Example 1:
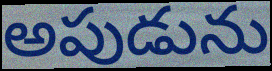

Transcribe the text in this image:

అపుడును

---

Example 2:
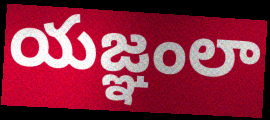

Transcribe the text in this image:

యజ్ఞంలా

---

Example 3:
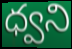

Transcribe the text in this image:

ధ్వని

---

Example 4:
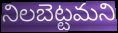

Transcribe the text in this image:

నిలబెట్టమని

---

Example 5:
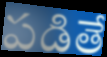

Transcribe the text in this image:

పడితే